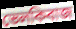
ভেলকিবাজ